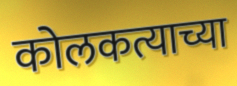
कोलकत्याच्या